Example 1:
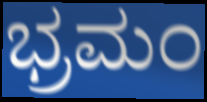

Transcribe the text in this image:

ಭ್ರಮಂ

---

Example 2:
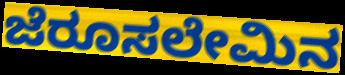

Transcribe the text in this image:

ಜೆರೂಸಲೇಮಿನ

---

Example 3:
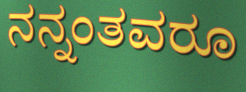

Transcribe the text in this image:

ನನ್ನಂತವರೂ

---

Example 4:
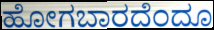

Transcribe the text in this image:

ಹೋಗಬಾರದೆಂದೂ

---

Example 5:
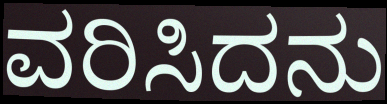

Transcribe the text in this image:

ವರಿಸಿದನು